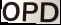
OPD